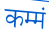
कम्मं